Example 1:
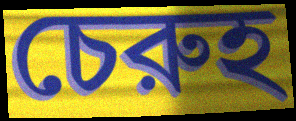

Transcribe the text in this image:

চেরুহ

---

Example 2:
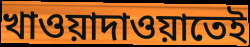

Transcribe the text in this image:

খাওয়াদাওয়াতেই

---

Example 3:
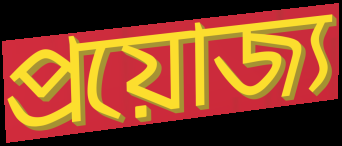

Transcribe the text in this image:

প্রয়োজ্য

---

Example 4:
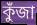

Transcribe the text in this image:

কুঁজা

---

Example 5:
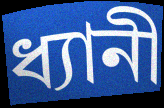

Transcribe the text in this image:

ধ্যানী